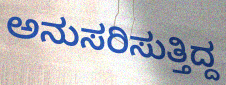
ಅನುಸರಿಸುತ್ತಿದ್ದ